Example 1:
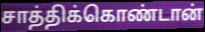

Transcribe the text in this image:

சாத்திக்கொண்டான்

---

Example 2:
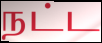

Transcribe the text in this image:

நட்ட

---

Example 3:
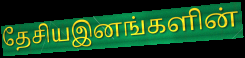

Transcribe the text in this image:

தேசியஇனங்களின்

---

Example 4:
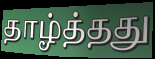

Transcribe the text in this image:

தாழ்த்தது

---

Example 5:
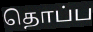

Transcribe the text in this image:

தொப்ப